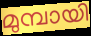
മുമ്പായി